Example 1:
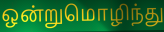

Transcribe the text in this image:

ஒன்றுமொழிந்து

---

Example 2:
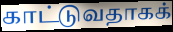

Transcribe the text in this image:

காட்டுவதாகக்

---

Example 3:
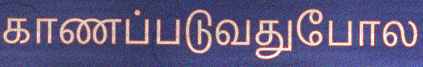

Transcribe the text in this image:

காணப்படுவதுபோல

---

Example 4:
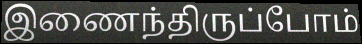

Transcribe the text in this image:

இணைந்திருப்போம்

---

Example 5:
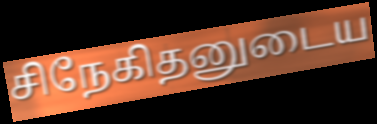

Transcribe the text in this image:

சிநேகிதனுடைய